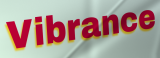
Vibrance